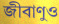
জীবাণুও